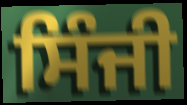
ਸਿੰਜੀ